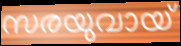
സരയുവായ്